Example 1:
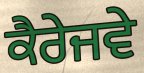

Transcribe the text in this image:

ਕੈਰੇਜਵੇ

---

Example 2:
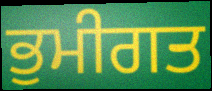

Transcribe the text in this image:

ਭੁਮੀਗਤ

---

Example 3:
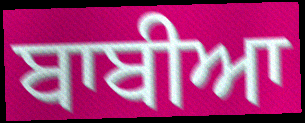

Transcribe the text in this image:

ਬਾਬੀਆ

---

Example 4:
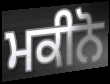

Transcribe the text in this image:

ਮਕੀਨੋ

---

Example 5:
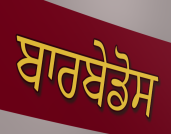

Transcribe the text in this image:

ਬਾਰਬੇਡੋਸ